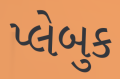
પ્લેબુક